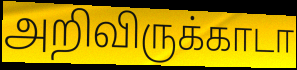
அறிவிருக்காடா